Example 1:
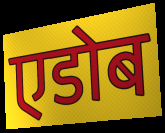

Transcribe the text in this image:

एडोब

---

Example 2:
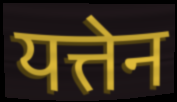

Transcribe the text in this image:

यत्तेन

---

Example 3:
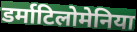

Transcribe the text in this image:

डर्माटिलोमेनिया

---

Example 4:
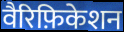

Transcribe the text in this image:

वैरिफ़िकेशन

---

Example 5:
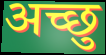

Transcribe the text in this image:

अच्छु